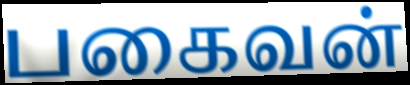
பகைவன்